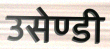
उसेण्डी